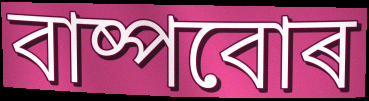
বাষ্পবোৰ